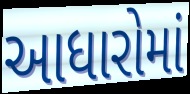
આધારોમાં